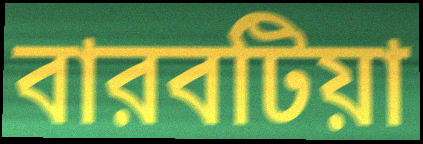
বারবটিয়া